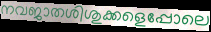
നവജാതശിശുക്കളെപ്പോലെ